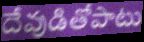
దేవుడితోపాటు